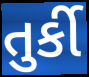
તુર્કી